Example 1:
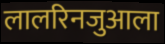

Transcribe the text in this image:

लालरिनजुआला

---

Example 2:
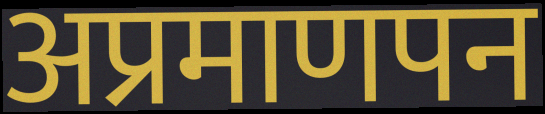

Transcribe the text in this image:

अप्रमाणपन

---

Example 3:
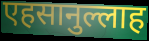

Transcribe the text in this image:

एहसानुल्लाह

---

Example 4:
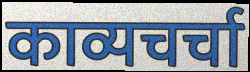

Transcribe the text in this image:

काव्यचर्चा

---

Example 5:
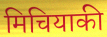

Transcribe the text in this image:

मिचियाकी